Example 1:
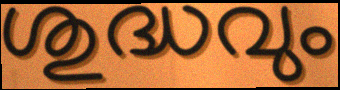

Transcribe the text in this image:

ശുദ്ധവും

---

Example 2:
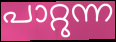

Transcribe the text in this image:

പാറ്റുന്ന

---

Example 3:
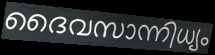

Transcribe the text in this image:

ദൈവസാന്നിധ്യം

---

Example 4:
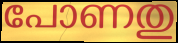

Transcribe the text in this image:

പോണതു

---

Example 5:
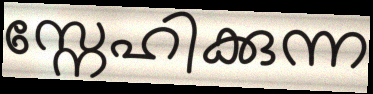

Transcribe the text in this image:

സ്നേഹിക്കുന്ന